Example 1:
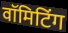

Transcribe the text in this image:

वॉमिटिंग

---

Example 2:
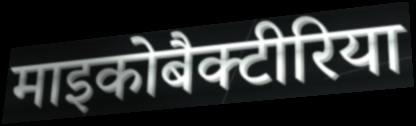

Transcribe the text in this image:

माइकोबैक्टीरिया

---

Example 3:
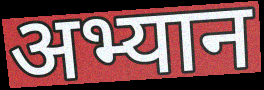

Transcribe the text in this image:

अभ्यान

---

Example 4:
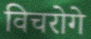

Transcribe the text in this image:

विचरोगे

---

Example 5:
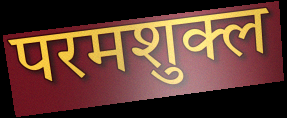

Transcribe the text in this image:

परमशुक्ल